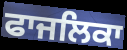
ਫਾਜਲਿਕਾ